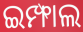
ଇମ୍ଫାଲ